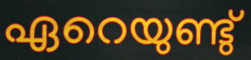
ഏറെയുണ്ടു്